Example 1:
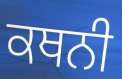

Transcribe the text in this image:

ਕਥਨੀ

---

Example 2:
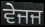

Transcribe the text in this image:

ਵੇਜਜ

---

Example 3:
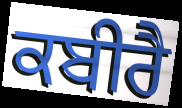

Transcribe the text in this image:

ਕਬੀਰੈ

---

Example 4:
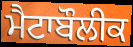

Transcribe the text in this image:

ਮੈਟਾਬੌਲੀਕ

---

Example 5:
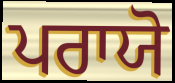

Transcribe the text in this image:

ਪਰਾਯੋ